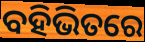
ବହିଭିତରେ